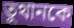
তুথানকে